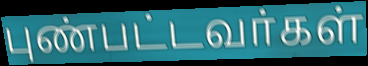
புண்பட்டவர்கள்